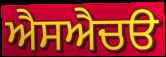
ਐਸਐਚੳ